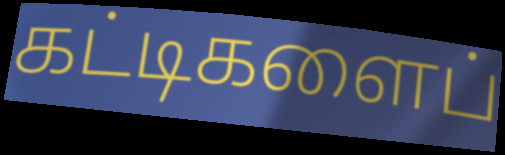
கட்டிகளைப்